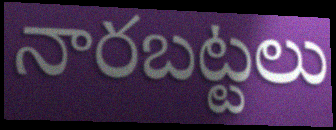
నారబట్టలు